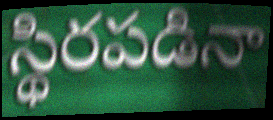
స్థిరపడినా